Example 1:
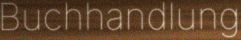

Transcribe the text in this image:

Buchhandlung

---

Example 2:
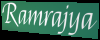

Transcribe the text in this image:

Ramrajya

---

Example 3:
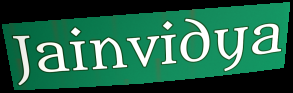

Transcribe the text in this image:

Jainvidya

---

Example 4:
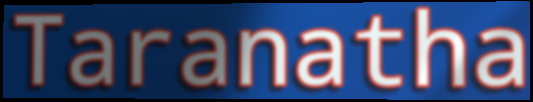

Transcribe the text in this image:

Taranatha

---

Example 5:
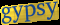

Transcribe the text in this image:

gypsy